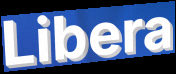
Libera